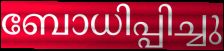
ബോധിപ്പിച്ചു